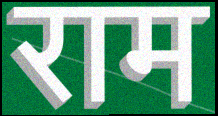
राम